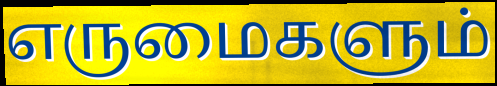
எருமைகளும்